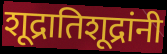
शूद्रातिशूद्रांनी